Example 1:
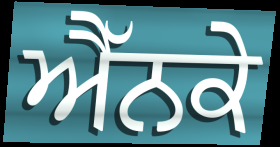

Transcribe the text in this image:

ਐੱਨਕੇ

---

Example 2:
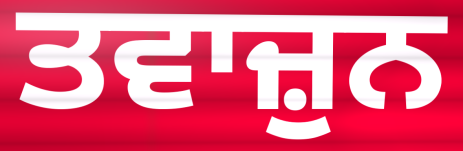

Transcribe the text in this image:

ਤਵਾਜ਼ੁਨ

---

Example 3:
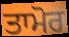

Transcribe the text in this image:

ਤਾਮੋਰ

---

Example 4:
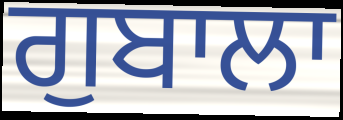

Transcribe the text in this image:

ਗੁਬਾਲਾ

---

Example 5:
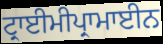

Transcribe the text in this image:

ਟ੍ਰਾਈਮੀਪ੍ਰਾਮਾਈਨ